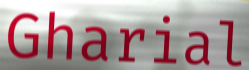
Gharial